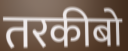
तरकीबो